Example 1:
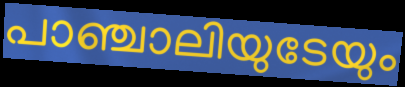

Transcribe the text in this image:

പാഞ്ചാലിയുടേയും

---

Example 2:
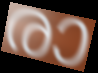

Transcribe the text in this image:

രാ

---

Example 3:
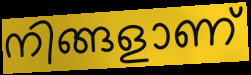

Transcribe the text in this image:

നിങ്ങളാണ്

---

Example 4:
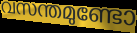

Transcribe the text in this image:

വസന്തമുണ്ടോ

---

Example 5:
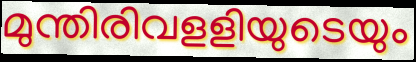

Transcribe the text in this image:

മുന്തിരിവളളിയുടെയും